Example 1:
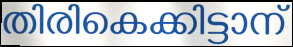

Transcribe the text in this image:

തിരികെക്കിട്ടാന്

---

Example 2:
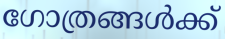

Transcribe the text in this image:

ഗോത്രങ്ങൾക്ക്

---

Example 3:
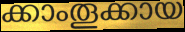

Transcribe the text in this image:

ക്കാംതൂക്കായ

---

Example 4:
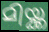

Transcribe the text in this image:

മിയ്ക്ക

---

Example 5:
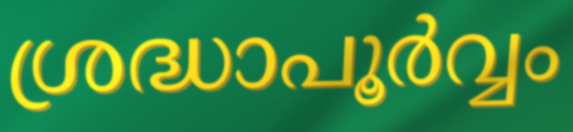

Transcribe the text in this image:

ശ്രദ്ധാപൂർവ്വം